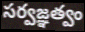
సర్వజ్ఞత్వం